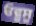
ਓਵੂਸੂ